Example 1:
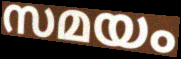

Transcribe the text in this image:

സമയം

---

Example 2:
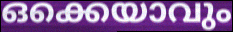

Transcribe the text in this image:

ഒക്കെയാവും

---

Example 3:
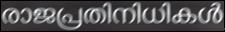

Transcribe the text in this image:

രാജപ്രതിനിധികൾ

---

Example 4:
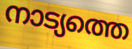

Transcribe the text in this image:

നാട്യത്തെ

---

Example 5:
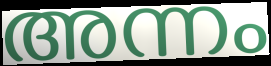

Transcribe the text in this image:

അന്നം